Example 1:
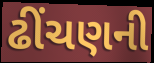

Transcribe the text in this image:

ઢીંચણની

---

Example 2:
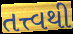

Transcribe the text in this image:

તત્ત્વથી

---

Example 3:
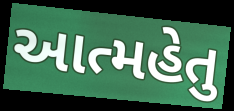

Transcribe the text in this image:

આત્મહેતુ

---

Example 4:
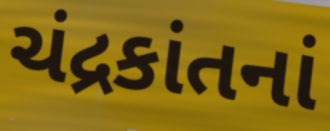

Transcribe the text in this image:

ચંદ્રકાંતનાં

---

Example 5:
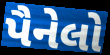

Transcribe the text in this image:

પૈનેલો